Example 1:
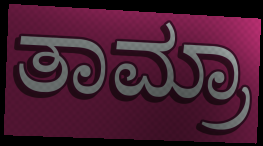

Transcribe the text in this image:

ತಾಮ್ರಾ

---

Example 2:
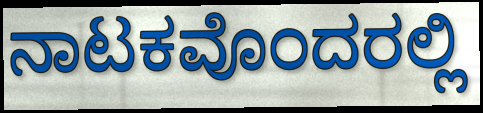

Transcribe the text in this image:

ನಾಟಕವೊಂದರಲ್ಲಿ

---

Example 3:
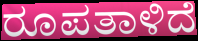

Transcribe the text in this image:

ರೂಪತಾಳಿದೆ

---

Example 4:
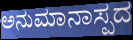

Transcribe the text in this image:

ಅನುಮಾನಾಸ್ಪದ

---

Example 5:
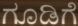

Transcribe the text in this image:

ಗೂಡಿಗೆ